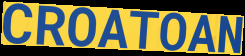
CROATOAN